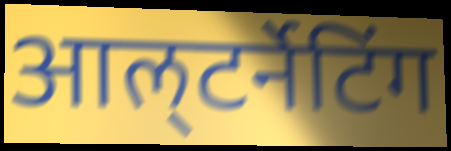
आल्टर्नेटिंग